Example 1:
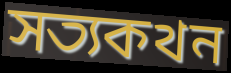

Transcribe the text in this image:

সত্যকথন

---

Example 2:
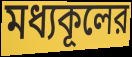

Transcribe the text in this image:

মধ্যকূলের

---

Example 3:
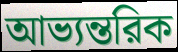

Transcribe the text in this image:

আভ্যন্তরিক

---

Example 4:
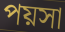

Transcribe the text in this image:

পয়সা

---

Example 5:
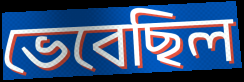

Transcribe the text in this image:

ভেবেছিল